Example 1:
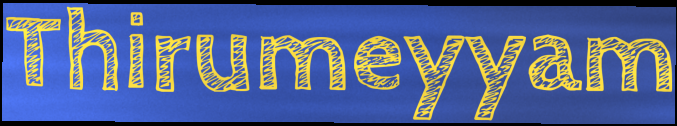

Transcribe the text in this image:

Thirumeyyam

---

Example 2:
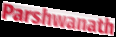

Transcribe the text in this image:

Parshwanath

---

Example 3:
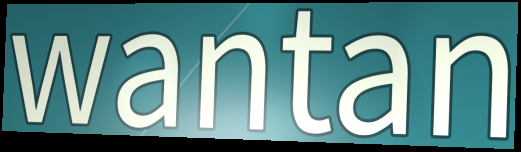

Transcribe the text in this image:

wantan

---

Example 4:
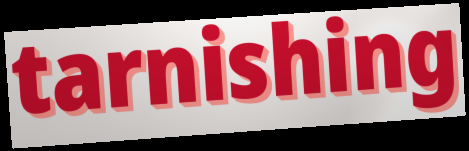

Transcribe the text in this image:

tarnishing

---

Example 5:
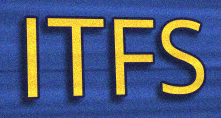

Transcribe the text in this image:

ITFS